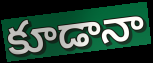
కూడానా